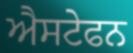
ਐਸਟੇਫਨ